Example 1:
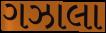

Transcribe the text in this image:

ગઝાલા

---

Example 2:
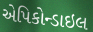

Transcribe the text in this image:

એપિકોન્ડાઇલ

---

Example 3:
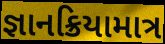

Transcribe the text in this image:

જ્ઞાનક્રિયામાત્ર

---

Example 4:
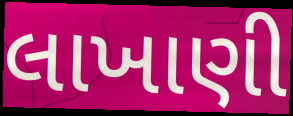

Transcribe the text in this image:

લાખાણી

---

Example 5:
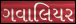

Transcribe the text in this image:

ગવાલિયર